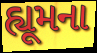
હ્યૂમના